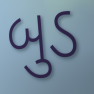
બુડ